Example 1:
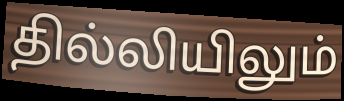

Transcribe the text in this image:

தில்லியிலும்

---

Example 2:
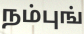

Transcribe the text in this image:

நம்புங்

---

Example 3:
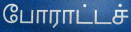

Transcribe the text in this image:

போராட்டச்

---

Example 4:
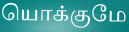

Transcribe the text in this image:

யொக்குமே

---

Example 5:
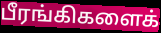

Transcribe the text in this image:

பீரங்கிகளைக்